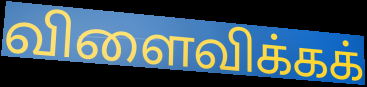
விளைவிக்கக்